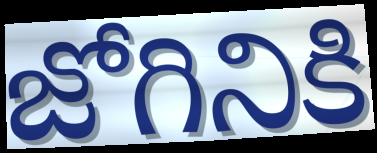
జోగినికి